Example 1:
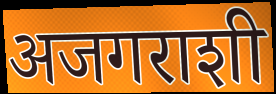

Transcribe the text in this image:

अजगराशी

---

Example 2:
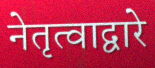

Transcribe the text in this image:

नेतृत्वाद्वारे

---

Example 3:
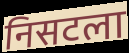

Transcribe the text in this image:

निसटला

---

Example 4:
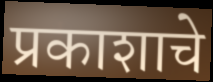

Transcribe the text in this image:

प्रकाशाचे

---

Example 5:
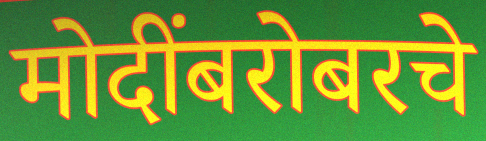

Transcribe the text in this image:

मोदींबरोबरचे